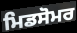
ਮਿਡਸੋਮਰ